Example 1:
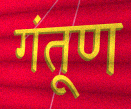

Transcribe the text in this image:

गंतूण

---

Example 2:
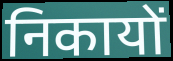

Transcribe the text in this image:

निकायों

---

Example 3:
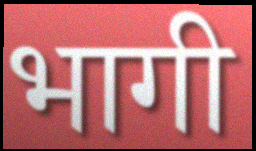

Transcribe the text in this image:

भागी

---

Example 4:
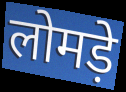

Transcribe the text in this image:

लोमड़े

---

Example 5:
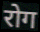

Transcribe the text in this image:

रोग